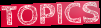
TOPICS